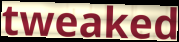
tweaked